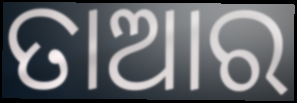
ତାଆର